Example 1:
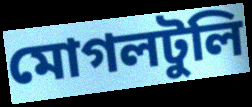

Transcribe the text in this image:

মোগলটুলি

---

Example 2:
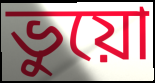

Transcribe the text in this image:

ভুয়ো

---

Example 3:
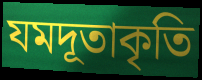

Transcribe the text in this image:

যমদূতাকৃতি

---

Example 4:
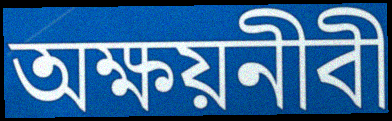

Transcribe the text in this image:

অক্ষয়নীবী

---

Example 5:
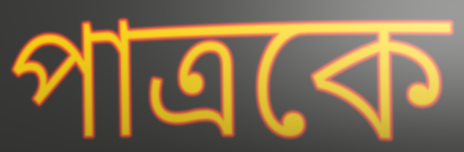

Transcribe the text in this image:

পাত্রকে